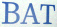
BAT